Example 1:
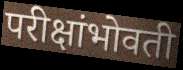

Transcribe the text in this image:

परीक्षांभोवती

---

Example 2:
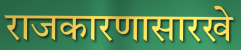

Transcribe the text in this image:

राजकारणासारखे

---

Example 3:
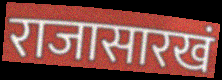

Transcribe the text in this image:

राजासारखं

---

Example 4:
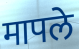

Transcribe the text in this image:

मापले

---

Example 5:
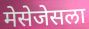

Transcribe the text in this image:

मेसेजेसला